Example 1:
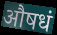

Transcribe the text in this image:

औषधं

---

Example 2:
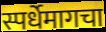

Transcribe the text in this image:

स्पर्धेमागचा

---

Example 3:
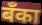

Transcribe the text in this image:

बॅंका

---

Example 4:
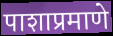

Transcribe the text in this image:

पाशाप्रमाणे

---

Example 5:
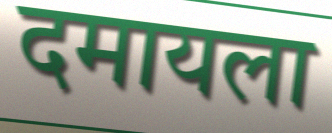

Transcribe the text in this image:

दमायला